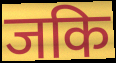
जकि